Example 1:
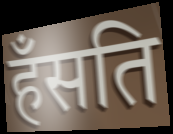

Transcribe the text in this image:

हँसति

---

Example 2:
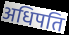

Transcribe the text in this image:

अधिपति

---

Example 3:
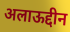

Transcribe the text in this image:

अलाऊद्दीन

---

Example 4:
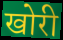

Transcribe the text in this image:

खोरी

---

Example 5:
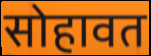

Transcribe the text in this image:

सोहावत